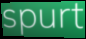
spurt